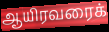
ஆயிரவரைக்